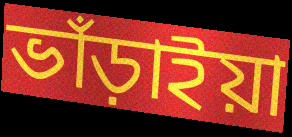
ভাঁড়াইয়া